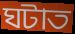
ঘটাত